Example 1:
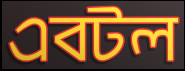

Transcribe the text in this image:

এবটল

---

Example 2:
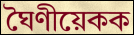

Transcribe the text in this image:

ঘৈণীয়েকক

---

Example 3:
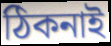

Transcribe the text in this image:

ঠিকনাই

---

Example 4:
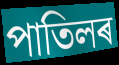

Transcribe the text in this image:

পাতিলৰ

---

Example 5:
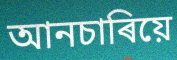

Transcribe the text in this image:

আনচাৰিয়ে